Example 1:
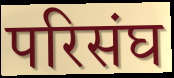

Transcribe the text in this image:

परिसंघ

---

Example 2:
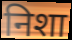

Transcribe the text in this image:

निशा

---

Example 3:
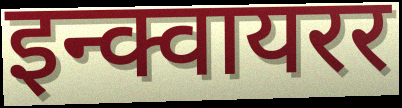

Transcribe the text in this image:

इन्क्वायरर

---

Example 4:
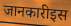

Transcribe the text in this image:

जानकारीइस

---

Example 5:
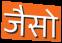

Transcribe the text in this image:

जैसो